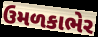
ઉમળકાભેર